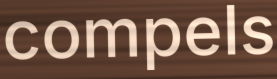
compels